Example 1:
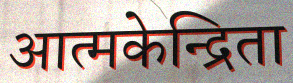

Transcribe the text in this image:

आत्मकेन्द्रिता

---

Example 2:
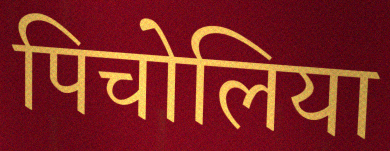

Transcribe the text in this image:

पिचोलिया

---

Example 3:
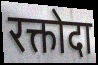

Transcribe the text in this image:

रक्तोदा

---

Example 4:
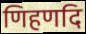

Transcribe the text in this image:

णिहणदि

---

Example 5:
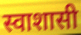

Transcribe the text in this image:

स्वाशासी